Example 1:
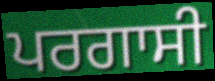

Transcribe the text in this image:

ਪਰਗਾਸੀ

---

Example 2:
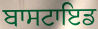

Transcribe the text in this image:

ਬਾਸਟਾਇਡ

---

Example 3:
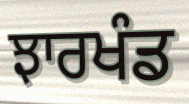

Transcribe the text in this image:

ਝਾਰਖੰਡ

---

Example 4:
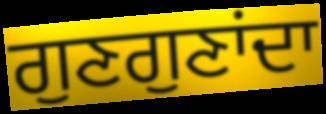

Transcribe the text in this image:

ਗੁਣਗੁਣਾਂਦਾ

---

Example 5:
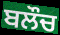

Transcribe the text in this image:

ਬਲੌਚ